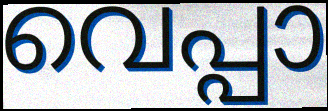
വെപ്പാ